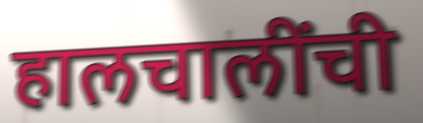
हालचालींची